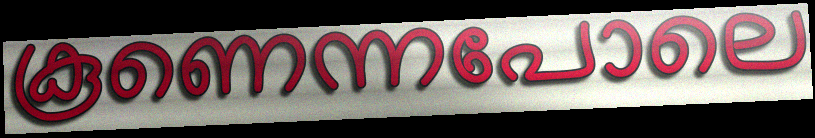
കൂണെന്നപോലെ